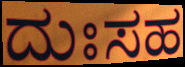
ದುಃಸಹ